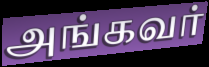
அங்கவர்